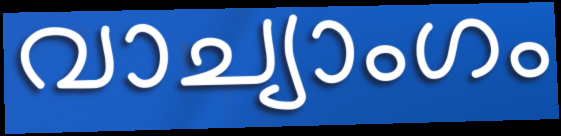
വാച്യാംഗം